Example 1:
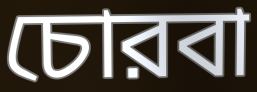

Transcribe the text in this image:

চোরবা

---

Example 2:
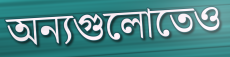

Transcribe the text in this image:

অন্যগুলোতেও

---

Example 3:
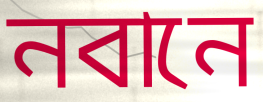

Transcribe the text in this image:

নবানে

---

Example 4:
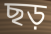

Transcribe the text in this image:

ছড়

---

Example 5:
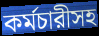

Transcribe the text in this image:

কর্মচারীসহ